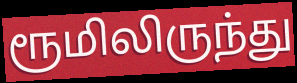
ரூமிலிருந்து